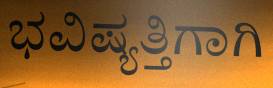
ಭವಿಷ್ಯತ್ತಿಗಾಗಿ